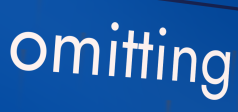
omitting